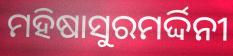
ମହିଷାସୁରମର୍ଦ୍ଦିନୀ